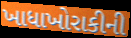
ખાધાખોરાકીની